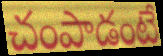
చంపాడంటే